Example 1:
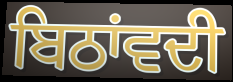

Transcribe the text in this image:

ਬਿਠਾਂਵਦੀ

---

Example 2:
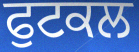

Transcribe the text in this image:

ਫੁਟਕਲ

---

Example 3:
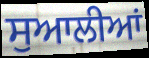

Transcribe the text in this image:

ਸੁਆਲੀਆਂ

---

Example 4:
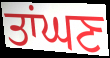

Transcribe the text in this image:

ਤਾਂਘਣ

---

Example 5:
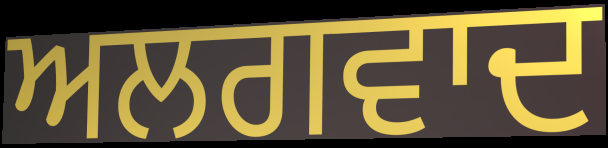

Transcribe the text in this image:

ਅਲਗਵਾਦ